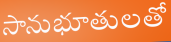
సానుభూతులతో